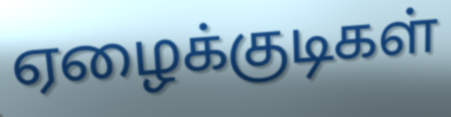
ஏழைக்குடிகள்